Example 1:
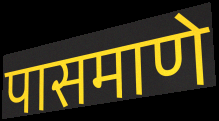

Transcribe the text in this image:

पासमाणे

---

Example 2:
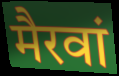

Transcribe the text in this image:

मैरवां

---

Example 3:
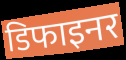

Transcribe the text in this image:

डिफाइनर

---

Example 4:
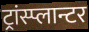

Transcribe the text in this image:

ट्रांस्प्लान्टर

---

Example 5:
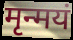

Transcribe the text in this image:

मृन्मयं